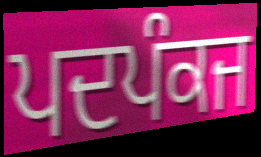
ਪਦਪੰਕਜ